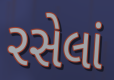
રસેલાં